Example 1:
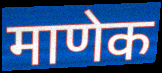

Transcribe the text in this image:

माणेक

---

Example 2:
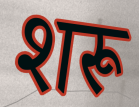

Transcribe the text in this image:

शरू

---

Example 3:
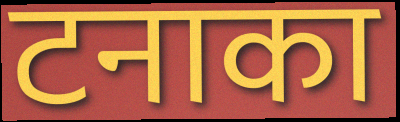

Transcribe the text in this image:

टनाका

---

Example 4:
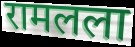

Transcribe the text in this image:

रामलला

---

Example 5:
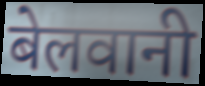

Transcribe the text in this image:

बेलवानी